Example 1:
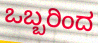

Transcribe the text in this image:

ಒಬ್ಬರಿಂದ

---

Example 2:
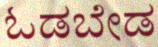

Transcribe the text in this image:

ಓಡಬೇಡ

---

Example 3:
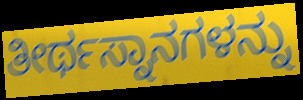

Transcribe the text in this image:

ತೀರ್ಥಸ್ನಾನಗಳನ್ನು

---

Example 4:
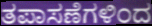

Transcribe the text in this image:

ತಪಾಸಣೆಗಳಿಂದ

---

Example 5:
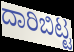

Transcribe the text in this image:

ದಾರಿಬಿಟ್ಟ